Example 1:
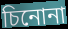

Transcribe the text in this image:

চিনোনা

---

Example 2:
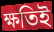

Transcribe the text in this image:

ক্ষতিই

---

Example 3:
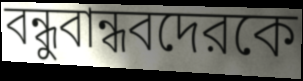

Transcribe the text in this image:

বন্ধুবান্ধবদেরকে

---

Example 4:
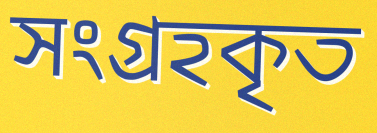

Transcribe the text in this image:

সংগ্রহকৃত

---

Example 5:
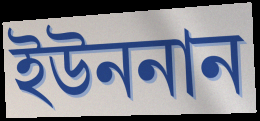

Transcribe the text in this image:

ইউননান